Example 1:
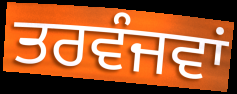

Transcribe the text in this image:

ਤਰਵੰਜਵਾਂ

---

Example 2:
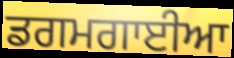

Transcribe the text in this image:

ਡਗਮਗਾਈਆ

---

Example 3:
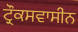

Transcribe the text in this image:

ਟ੍ਰੌਕਸਵਾਸੀਨ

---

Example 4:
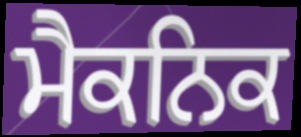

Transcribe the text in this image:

ਮੈਕਨਿਕ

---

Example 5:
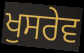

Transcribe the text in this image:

ਖੁਸਰੇਵ